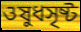
ওষুধসৃষ্ট